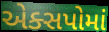
એક્સપોમાં